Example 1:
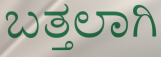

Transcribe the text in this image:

ಬತ್ತಲಾಗಿ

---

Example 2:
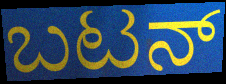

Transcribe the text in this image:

ಬಟನ್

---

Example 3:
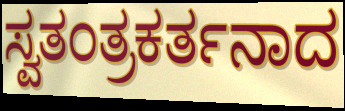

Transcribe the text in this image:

ಸ್ವತಂತ್ರಕರ್ತನಾದ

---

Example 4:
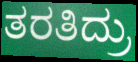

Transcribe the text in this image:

ತರತಿದ್ರು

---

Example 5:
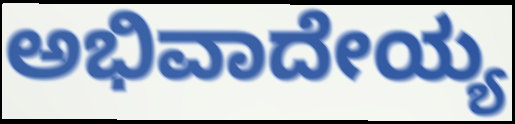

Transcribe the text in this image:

ಅಭಿವಾದೇಯ್ಯ